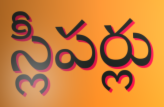
స్లీపర్లు